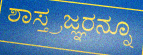
ಶಾಸ್ತ್ರಜ್ಞರನ್ನೂ